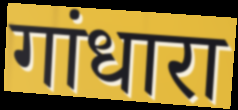
गांधारा